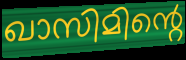
ഖാസിമിന്റെ